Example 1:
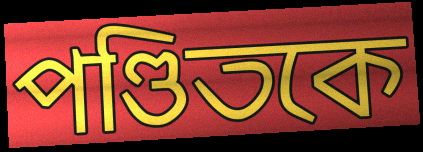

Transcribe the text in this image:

পণ্ডিতকে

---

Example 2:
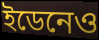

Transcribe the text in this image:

ইডেনেও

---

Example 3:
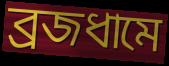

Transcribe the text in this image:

ব্রজধামে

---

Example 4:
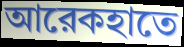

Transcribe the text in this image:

আরেকহাতে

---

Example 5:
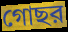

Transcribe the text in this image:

গোছর